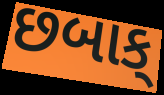
છબાક્